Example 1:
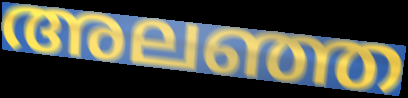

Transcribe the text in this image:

അലഞ്ഞ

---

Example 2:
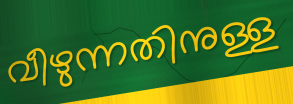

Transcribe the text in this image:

വീഴുന്നതിനുള്ള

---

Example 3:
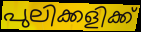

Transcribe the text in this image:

പുലിക്കളിക്ക്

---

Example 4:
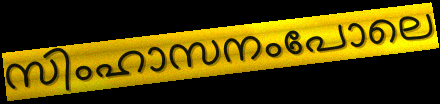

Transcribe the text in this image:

സിംഹാസനംപോലെ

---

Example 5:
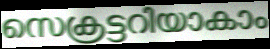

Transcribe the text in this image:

സെക്രട്ടറിയാകാം